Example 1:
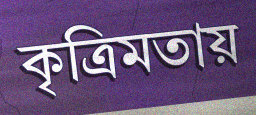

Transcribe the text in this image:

কৃত্রিমতায়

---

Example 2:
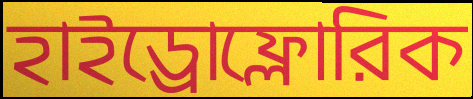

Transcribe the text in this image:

হাইড্রোফ্লোরিক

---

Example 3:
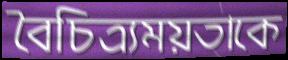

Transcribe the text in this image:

বৈচিত্র্যময়তাকে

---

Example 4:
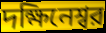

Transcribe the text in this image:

দক্ষিনেশ্বর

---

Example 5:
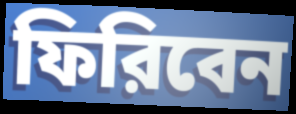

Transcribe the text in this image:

ফিরিবেন